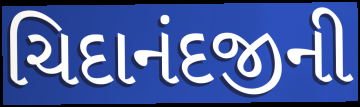
ચિદાનંદજીની